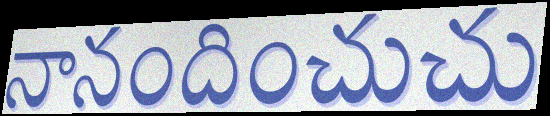
నానందించుచు